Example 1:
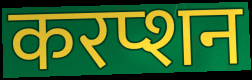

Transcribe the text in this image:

करप्‍शन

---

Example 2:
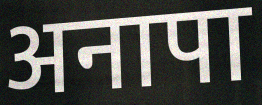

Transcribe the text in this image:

अनापा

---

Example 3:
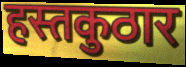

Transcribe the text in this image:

हस्तकुठार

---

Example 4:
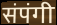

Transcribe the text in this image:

संपंगी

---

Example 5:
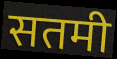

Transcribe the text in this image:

सतमी